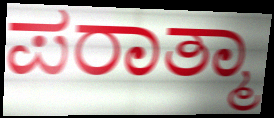
ಪರಾತ್ಮಾ